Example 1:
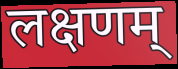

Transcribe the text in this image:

लक्षणम्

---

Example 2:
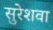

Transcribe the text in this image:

सुरेशवा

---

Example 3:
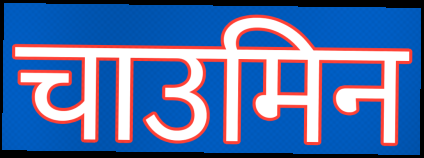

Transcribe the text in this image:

चाउमिन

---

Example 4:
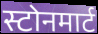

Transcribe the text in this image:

स्टोनमार्ट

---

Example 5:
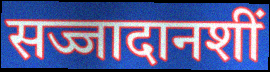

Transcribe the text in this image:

सज्जादानशीं